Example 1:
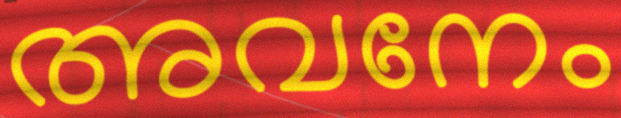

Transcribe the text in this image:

അവനേം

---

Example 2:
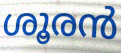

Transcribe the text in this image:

ശൂരൻ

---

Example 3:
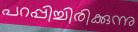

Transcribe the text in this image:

പറപ്പിച്ചിരിക്കുന്നു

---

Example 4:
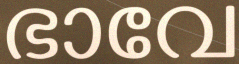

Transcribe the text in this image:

ഭാവേ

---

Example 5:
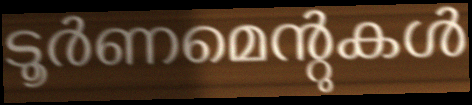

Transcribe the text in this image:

ടൂർണമെന്റുകൾ